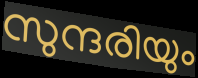
സുന്ദരിയും